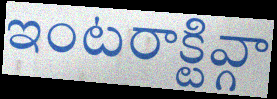
ఇంటరాక్టివ్గా